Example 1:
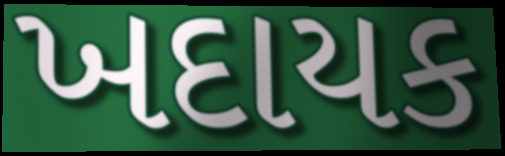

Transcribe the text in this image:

ખદાયક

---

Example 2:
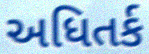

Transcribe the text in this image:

અધિતર્ક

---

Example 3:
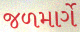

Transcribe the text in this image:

જળમાર્ગે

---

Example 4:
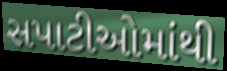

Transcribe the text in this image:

સપાટીઓમાંથી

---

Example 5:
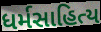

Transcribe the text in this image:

ધર્મસાહિત્ય